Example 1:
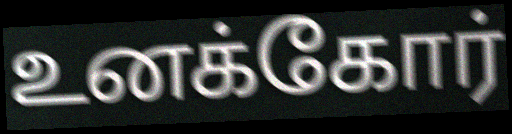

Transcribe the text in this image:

உனக்கோர்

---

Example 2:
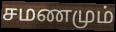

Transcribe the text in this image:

சமணமும்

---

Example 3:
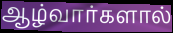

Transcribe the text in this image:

ஆழ்வார்களால்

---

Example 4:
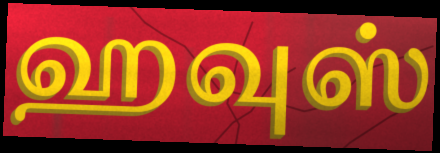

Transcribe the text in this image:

ஹவுஸ்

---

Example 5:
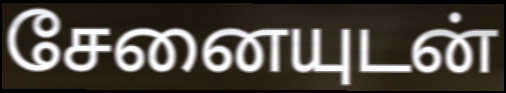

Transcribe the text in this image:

சேனையுடன்